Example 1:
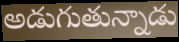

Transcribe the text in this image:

అడుగుతున్నాడు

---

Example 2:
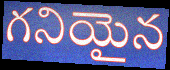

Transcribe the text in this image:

గనియైన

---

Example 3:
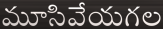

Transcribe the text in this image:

మూసివేయగల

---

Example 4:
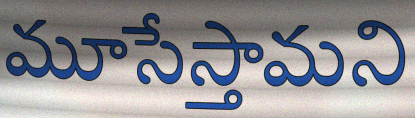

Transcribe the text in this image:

మూసేస్తామని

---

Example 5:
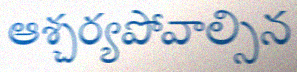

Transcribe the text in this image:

ఆశ్చర్యపోవాల్సిన